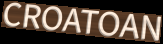
CROATOAN